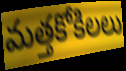
మత్తకోకిలలు